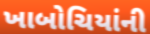
ખાબોચિયાંની